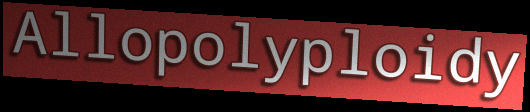
Allopolyploidy